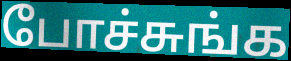
போச்சுங்க